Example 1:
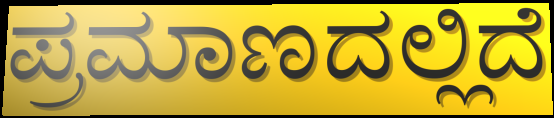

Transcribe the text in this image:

ಪ್ರಮಾಣದಲ್ಲಿದೆ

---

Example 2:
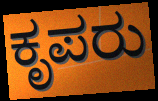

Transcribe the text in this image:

ಕೃಪರು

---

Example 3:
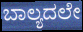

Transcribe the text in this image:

ಬಾಲ್ಯದಲೇ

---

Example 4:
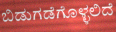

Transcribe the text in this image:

ಬಿಡುಗಡೆಗೊಳ್ಳಲಿದೆ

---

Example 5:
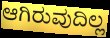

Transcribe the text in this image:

ಆಗಿರುವುದಿಲ್ಲ